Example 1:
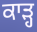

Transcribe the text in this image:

ਕਾੜ੍ਹ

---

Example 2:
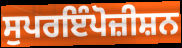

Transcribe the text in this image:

ਸੁਪਰਇੰਪੋਜ਼ੀਸ਼ਨ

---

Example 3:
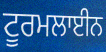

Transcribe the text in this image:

ਟੂਰਮਲਾਈਨ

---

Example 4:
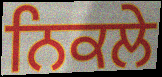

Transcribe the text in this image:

ਨਿਕਲੇ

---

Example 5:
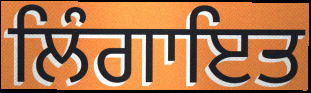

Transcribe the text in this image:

ਲਿੰਗਾਇਤ